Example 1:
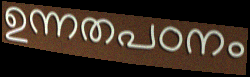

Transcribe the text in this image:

ഉന്നതപഠനം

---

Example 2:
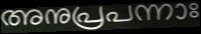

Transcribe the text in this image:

അനുപ്രപന്നാഃ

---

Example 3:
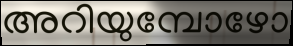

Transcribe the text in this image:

അറിയുമ്പോഴോ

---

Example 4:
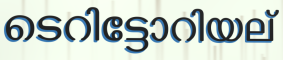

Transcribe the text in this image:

ടെറിട്ടോറിയല്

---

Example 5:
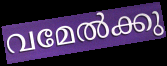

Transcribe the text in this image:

വമേൽക്കു